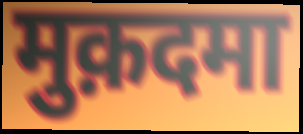
मुक़दमा